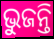
ଭୁଜନ୍ତି